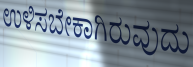
ಉಳಿಸಬೇಕಾಗಿರುವುದು